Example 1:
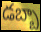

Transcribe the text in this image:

డబ్బా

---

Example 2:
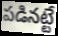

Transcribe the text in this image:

పడినట్టే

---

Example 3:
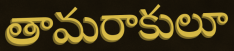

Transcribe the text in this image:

తామరాకులూ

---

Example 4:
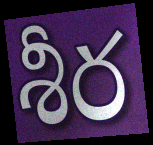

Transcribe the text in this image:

శీర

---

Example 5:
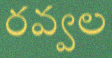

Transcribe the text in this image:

రవ్వల